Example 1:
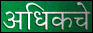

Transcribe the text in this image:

अधिकचे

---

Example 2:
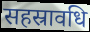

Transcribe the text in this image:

सहस्रावधि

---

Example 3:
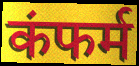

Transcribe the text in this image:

कंफर्म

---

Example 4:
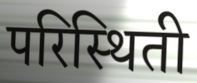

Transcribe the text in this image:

परिस्थिती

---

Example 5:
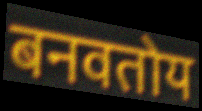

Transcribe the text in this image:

बनवतोय